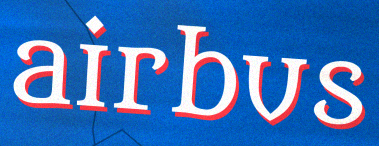
airbus